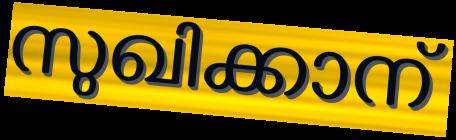
സുഖിക്കാന്